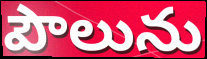
పౌలును